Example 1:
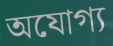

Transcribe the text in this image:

অযোগ্য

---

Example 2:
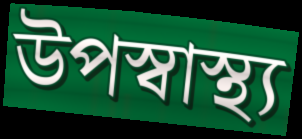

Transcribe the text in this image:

উপস্বাস্থ্য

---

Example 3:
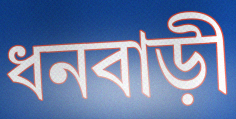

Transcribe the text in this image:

ধনবাড়ী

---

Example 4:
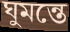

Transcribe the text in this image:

ঘুমন্তে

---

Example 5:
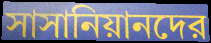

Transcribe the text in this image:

সাসানিয়ানদের